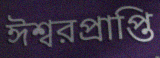
ঈশ্বরপ্রাপ্তি